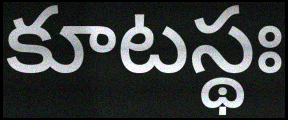
కూటస్థః